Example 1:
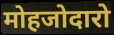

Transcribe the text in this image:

मोहजोदारो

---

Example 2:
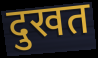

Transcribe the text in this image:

दुखत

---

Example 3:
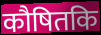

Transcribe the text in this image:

कौषितकि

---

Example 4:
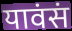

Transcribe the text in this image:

यावंसं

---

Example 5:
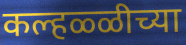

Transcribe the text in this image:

कल्हळ्ळीच्या